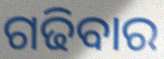
ଗଢିବାର